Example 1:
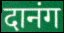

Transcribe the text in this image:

दानंग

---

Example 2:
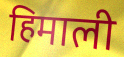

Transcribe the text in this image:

हिमाली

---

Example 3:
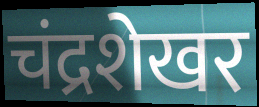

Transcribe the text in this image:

चंद्रशेखर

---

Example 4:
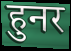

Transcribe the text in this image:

हुनर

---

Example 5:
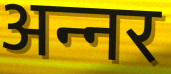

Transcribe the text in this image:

अन्नर